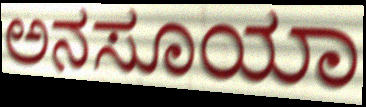
ಅನಸೂಯಾ